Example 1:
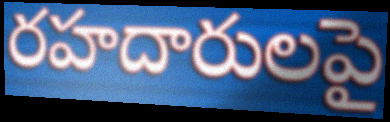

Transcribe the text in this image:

రహదారులపై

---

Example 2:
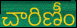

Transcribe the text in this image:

చారిణీం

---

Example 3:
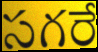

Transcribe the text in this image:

సగరే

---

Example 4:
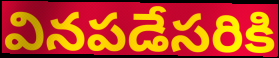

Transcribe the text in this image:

వినపడేసరికి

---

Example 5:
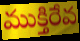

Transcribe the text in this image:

ముక్తిరేవ